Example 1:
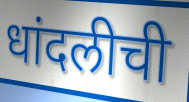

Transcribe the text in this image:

धांदलीची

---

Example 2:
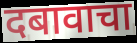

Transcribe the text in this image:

दबावाचा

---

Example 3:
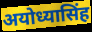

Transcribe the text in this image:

अयोध्यासिंह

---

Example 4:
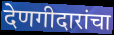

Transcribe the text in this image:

देणगीदारांचा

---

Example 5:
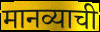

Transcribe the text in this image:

मानव्याची